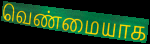
வெண்மையாக